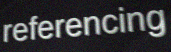
referencing